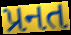
પ્રનત